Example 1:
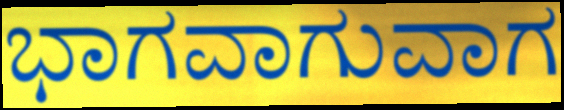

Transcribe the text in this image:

ಭಾಗವಾಗುವಾಗ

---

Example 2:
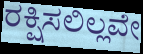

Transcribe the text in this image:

ರಕ್ಷಿಸಲಿಲ್ಲವೇ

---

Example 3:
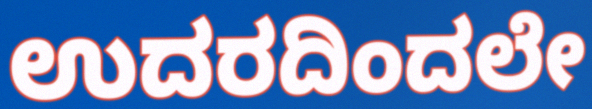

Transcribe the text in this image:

ಉದರದಿಂದಲೇ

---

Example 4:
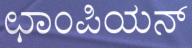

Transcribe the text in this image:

ಛಾಂಪಿಯನ್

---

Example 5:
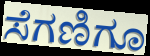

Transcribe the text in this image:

ಸೆಗಣಿಗೂ